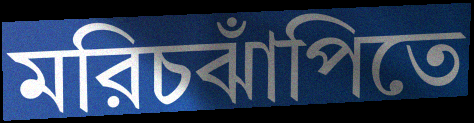
মরিচঝাঁপিতে